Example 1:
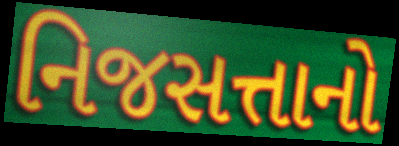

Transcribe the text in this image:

નિજસત્તાનો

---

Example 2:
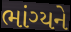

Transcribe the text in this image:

ભાંગ્યને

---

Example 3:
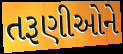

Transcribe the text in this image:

તરૂણીઓને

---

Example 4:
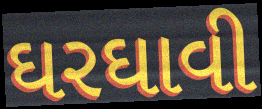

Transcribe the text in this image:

ઘરઘાવી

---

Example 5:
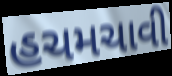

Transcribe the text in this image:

હચમચાવી